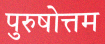
पुरुषोत्तम